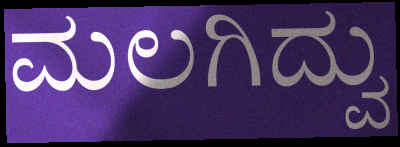
ಮಲಗಿದ್ವು